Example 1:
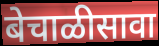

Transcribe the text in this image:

बेचाळीसावा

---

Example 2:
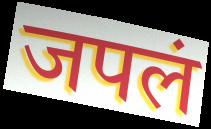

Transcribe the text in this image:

जपलं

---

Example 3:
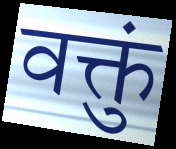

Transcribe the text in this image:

वक्तुं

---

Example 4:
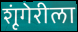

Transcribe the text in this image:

श्रृंगेरीला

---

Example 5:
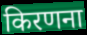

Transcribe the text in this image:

किरणना